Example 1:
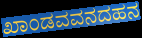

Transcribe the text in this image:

ಖಾಂಡವವನದಹನ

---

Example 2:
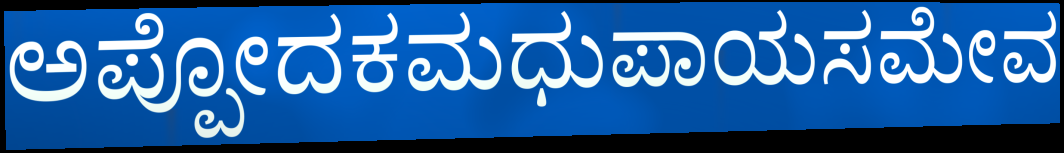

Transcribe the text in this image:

ಅಪ್ಪೋದಕಮಧುಪಾಯಸಮೇವ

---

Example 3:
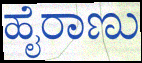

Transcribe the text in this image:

ಹೈರಾಣು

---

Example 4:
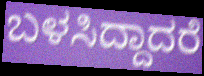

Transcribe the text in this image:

ಬಳಸಿದ್ದಾದರೆ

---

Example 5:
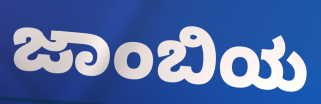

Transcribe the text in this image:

ಜಾಂಬಿಯ